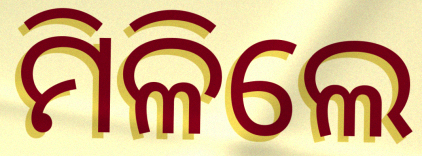
ମିଳିଲେ